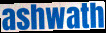
ashwath